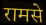
रामसे